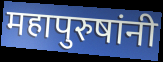
महापुरुषांनी